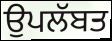
ਉਪਲੱਬਤ